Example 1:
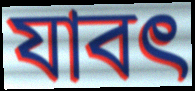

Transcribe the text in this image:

যাবৎ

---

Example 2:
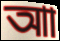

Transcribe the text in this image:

আা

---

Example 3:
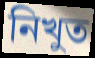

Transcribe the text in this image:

নিখুত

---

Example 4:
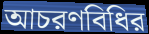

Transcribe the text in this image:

আচরণবিধির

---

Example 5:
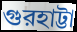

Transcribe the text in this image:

গুরহাট্টা